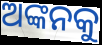
ଅଙ୍କନକୁ